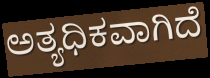
ಅತ್ಯಧಿಕವಾಗಿದೆ